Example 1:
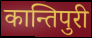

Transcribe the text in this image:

कान्तिपुरी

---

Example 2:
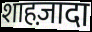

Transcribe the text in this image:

शाहज़ादा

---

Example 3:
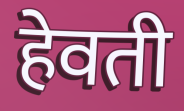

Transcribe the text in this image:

हेवती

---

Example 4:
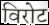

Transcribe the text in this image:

विरोट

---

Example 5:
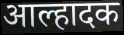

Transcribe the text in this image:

आल्हादक